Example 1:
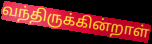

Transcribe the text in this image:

வந்திருக்கின்றாள்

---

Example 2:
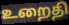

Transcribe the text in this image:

உறைதி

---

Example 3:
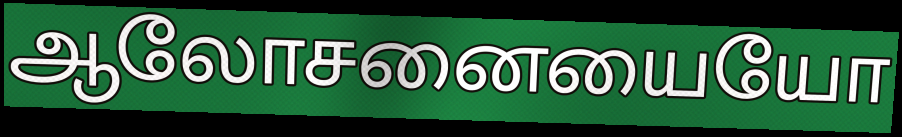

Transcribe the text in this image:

ஆலோசனையையோ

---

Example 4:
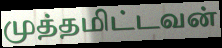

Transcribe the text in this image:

முத்தமிட்டவன்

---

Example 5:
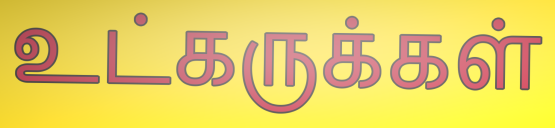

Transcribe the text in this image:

உட்கருக்கள்